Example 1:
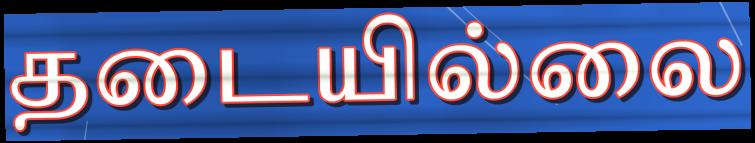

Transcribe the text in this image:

தடையில்லை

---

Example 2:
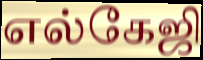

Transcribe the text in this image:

எல்கேஜி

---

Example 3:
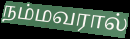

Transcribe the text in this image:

நம்மவரால்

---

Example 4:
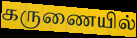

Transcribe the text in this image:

கருணையில்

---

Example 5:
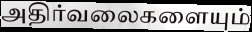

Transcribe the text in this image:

அதிர்வலைகளையும்